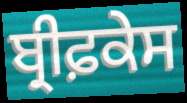
ਬ੍ਰੀਫ਼ਕੇਸ